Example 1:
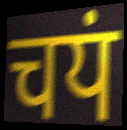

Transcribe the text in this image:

चयं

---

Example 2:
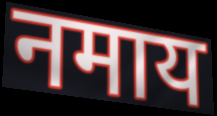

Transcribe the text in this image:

नमाय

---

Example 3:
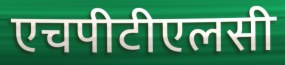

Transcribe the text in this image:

एचपीटीएलसी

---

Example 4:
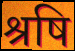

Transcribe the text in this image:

श्रषि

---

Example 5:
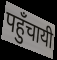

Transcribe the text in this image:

पहुँचायी